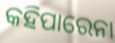
କହିପାରେନା